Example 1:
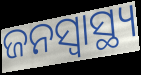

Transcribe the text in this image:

ଜନସ୍ବାସ୍ଥ୍ୟ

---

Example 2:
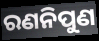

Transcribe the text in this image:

ରଣନିପୁଣ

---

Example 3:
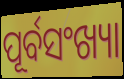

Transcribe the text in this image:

ପୂର୍ବସଂଖ୍ୟା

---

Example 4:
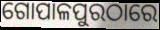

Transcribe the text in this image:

ଗୋପାଳପୁରଠାରେ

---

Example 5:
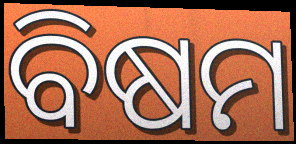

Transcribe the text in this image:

ବିଷମ